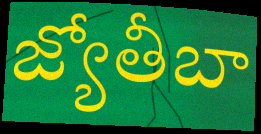
జ్యోతీబా